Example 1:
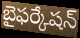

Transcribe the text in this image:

బైఫర్కేషన్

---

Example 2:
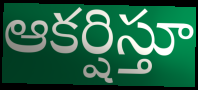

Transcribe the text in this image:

ఆకర్షిస్తూ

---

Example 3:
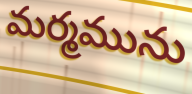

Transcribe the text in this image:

మర్మమును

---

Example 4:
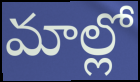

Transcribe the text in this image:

మాల్లో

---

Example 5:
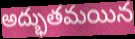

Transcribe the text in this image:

అద్భుతమయిన